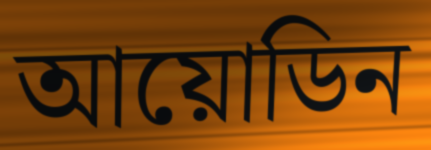
আয়োডিন